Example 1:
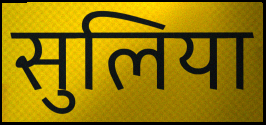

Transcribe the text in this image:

सुलिया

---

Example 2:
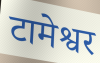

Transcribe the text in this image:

टामेश्वर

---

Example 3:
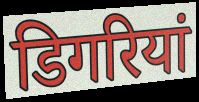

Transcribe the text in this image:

डिगरियां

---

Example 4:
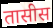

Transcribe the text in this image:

तासीस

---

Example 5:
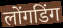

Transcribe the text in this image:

लोंगडिंग